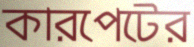
কারপেটের